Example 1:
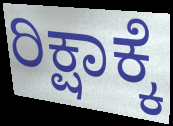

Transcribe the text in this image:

ರಿಕ್ಷಾಕ್ಕೆ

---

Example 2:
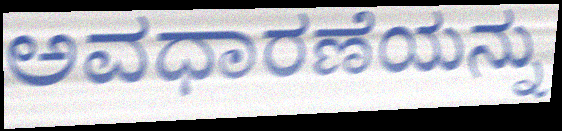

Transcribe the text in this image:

ಅವಧಾರಣೆಯನ್ನು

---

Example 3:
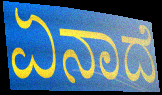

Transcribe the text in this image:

ಏನಾದೆ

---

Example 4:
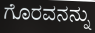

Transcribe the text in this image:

ಗೊರವನನ್ನು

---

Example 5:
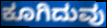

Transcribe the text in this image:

ಕೂಗಿದುವು